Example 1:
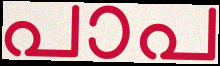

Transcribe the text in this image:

പാപ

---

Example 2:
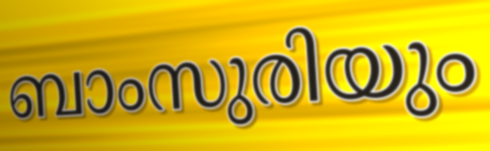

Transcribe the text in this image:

ബാംസുരിയും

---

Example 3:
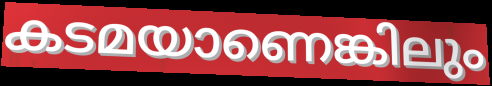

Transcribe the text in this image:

കടമയാണെങ്കിലും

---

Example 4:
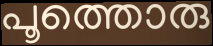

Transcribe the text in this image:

പൂത്തൊരു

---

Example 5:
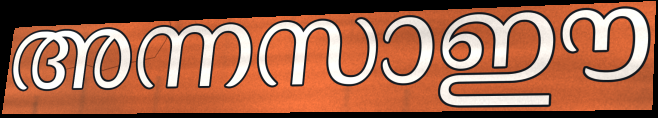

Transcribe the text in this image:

അന്നസാഈ